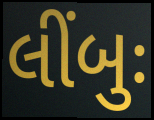
લીંબુઃ